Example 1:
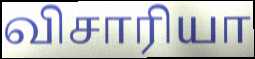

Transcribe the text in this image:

விசாரியா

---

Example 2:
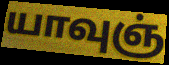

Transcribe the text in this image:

யாவுஞ்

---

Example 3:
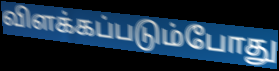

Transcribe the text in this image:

விளக்கப்படும்போது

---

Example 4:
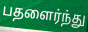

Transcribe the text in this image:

பதளைர்ந்து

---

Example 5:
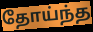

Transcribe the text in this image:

தோய்ந்த